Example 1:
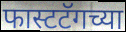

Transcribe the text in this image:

फास्टटॅगच्या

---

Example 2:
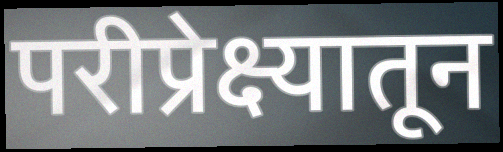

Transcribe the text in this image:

परीप्रेक्ष्यातून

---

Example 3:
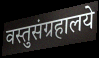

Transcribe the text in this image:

वस्तुसंग्रहालये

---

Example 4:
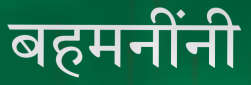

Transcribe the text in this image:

बहमनींनी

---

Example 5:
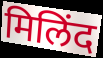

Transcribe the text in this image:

मिलिंद